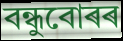
বন্ধুবোৰৰ